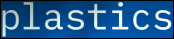
plastics